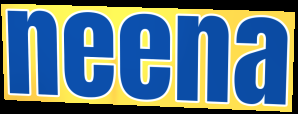
neena